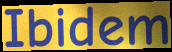
Ibidem